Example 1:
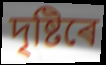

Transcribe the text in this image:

দৃষ্টিৰে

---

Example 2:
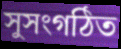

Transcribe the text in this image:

সুসংগঠিত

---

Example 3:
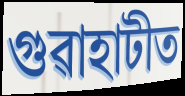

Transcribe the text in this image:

গুৱাহাটীত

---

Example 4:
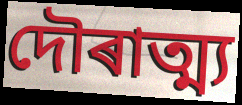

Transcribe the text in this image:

দৌৰাত্ম্য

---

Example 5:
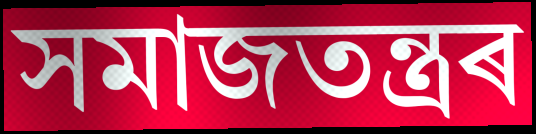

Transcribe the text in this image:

সমাজতন্ত্ৰৰ